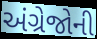
અંગ્રેજોની